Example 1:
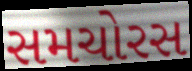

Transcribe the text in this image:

સમચોરસ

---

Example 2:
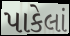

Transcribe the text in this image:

પાકેલાં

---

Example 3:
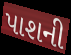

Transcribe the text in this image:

પાશની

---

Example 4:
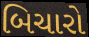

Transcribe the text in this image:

બિચારો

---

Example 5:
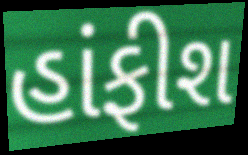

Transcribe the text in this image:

હાંફીશ